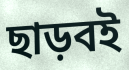
ছাড়বই